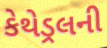
કેથેડ્રલની